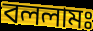
বললামঃ